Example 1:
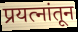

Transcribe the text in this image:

प्रयत्नांतून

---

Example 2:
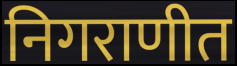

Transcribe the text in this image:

निगराणीत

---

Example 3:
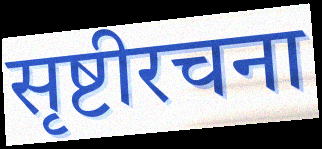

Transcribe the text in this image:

सृष्टीरचना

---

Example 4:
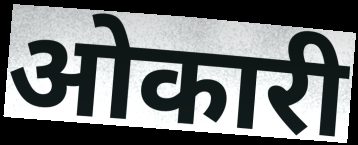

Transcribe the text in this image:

ओकारी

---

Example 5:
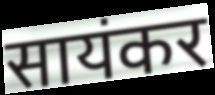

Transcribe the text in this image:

सायंकर